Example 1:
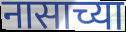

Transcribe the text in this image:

नासाच्या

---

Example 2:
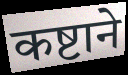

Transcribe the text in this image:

कष्टाने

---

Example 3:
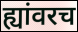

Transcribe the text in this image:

ह्यांवरच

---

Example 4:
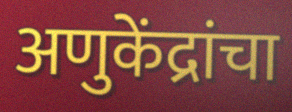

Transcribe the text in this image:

अणुकेंद्रांचा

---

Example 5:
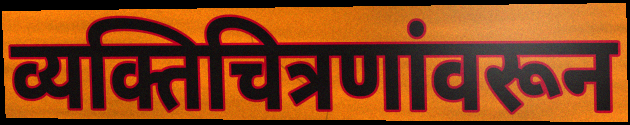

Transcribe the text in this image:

व्यक्तिचित्रणांवरून